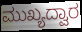
ಮುಖ್ಯದ್ವಾರ